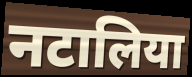
नटालिया